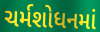
ચર્મશોધનમાં